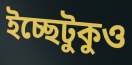
ইচ্ছেটুকুও